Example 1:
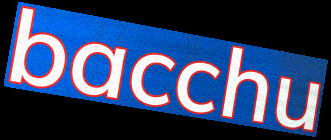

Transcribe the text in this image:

bacchu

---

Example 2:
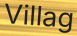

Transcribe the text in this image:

Villag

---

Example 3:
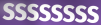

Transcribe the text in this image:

SSSSSSSS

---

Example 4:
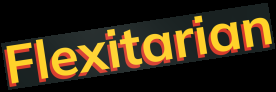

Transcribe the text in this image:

Flexitarian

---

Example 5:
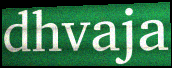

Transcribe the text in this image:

dhvaja